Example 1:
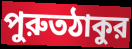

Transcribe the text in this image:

পুরুতঠাকুর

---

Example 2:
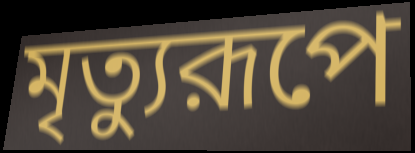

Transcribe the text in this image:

মৃত্যুরূপে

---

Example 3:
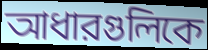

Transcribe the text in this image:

আধারগুলিকে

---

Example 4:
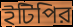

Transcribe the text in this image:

ইটিপির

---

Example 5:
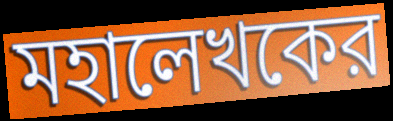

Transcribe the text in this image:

মহালেখকের